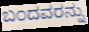
ಬಂದವರನ್ನು